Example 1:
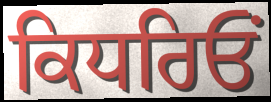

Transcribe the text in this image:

ਕਿਧਰਿਓਂ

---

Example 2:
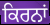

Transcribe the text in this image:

ਕਿਰਨਾਂ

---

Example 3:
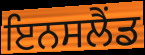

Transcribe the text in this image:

ਇਨਸਲੈਂਡ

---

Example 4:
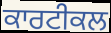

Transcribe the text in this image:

ਕਾਰਟੀਕਲ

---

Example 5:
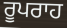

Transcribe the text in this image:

ਰੂਪਰਾਹ